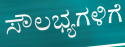
ಸೌಲಭ್ಯಗಳಿಗೆ